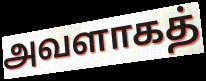
அவளாகத்